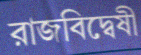
রাজবিদ্বেষী